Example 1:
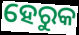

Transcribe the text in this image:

ହେରୁକ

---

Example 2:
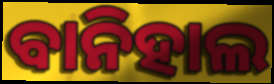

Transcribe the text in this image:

ବାନିହାଲ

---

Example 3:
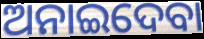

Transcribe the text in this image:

ଅନାଇଦେବା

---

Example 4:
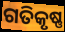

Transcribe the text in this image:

ଗତିକୃଷ୍ଣ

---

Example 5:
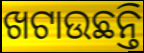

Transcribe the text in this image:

ଖଟାଉଛନ୍ତି